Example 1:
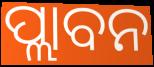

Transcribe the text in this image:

ପ୍ଲାବନ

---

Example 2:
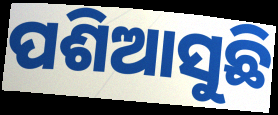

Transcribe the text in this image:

ପଶିଆସୁଛି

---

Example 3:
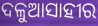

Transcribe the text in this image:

ଦଳୁଆସାହୀର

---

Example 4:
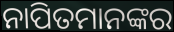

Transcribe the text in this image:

ନାପିତମାନଙ୍କର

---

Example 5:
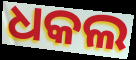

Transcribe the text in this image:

ଧକଲ